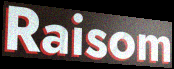
Raisom